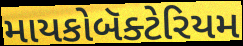
માયકોબૅક્ટેરિયમ